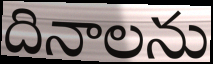
దినాలను